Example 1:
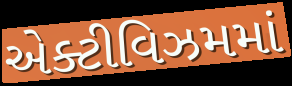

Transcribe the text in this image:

એક્ટીવિઝમમાં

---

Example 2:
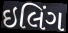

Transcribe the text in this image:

ઇલિંગ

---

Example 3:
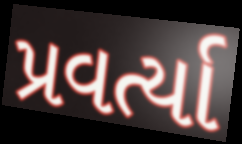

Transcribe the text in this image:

પ્રવર્ત્યા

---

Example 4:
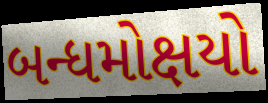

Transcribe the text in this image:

બન્ધમોક્ષયો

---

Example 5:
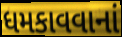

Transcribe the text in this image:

ધમકાવવાનાં